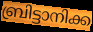
ബ്രിട്ടാനിക്ക